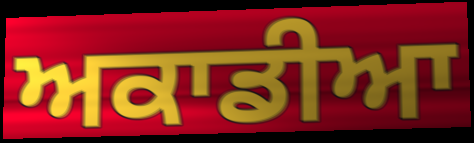
ਅਕਾਡੀਆ